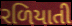
રળિયાતી